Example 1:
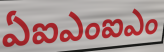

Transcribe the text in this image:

ఏఐఎంఐఎం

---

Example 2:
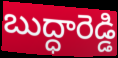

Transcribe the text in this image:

బుద్ధారెడ్డి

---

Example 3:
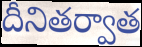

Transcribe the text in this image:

దీనితర్వాత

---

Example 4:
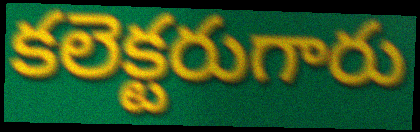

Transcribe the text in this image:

కలెక్టరుగారు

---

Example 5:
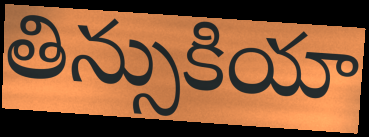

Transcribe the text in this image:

తిన్సుకియా